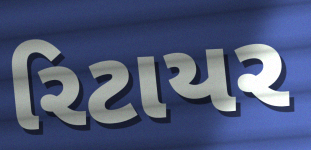
રિટાયર